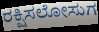
ರಕ್ಷಿಸಲೋಸುಗ